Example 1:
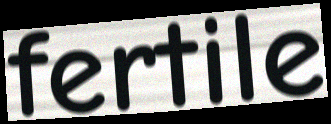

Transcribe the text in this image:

fertile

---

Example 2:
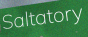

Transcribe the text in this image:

Saltatory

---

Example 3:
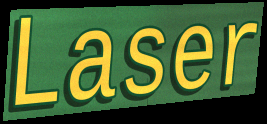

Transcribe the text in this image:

Laser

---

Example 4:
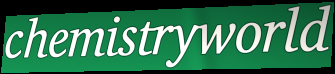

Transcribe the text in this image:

chemistryworld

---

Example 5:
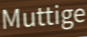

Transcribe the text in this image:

Muttige